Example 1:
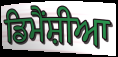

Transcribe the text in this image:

ਡਿਮੈਂਸ਼ੀਆ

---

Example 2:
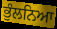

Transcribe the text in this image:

ਭੁੰਲਨਿਆ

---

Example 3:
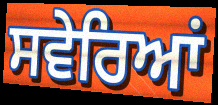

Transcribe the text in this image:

ਸਵੇਰਿਆਂ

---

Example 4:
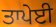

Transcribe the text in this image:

ਤਾਪੇਈ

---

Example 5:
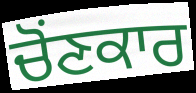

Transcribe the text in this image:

ਚੋਂਣਕਾਰ